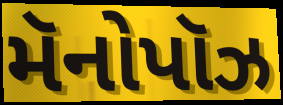
મૅનોપૉઝ